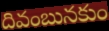
దివంబునకుం